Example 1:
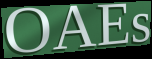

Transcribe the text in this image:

OAEs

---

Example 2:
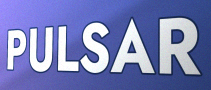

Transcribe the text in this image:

PULSAR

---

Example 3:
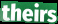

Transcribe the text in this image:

theirs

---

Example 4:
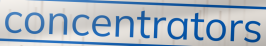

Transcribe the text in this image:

concentrators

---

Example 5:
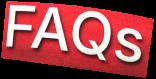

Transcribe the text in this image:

FAQs